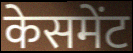
केसमेंट